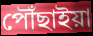
পৌঁছাইয়া